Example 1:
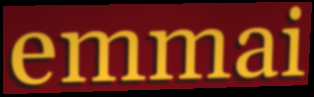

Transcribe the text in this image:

emmai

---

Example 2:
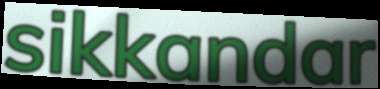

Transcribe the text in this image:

sikkandar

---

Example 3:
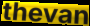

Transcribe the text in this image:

thevan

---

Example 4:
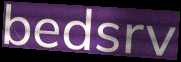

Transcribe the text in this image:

bedsrv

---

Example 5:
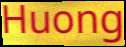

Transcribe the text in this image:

Huong